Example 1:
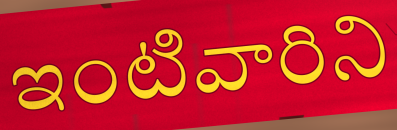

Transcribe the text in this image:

ఇంటివారిని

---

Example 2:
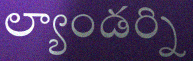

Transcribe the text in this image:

ల్యాండర్ని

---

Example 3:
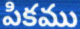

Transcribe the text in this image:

పికము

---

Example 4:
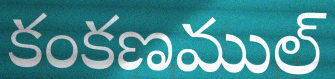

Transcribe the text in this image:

కంకణముల్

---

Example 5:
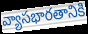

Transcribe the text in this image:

వ్యాసభారతానికి